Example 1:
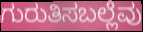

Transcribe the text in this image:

ಗುರುತಿಸಬಲ್ಲೆವು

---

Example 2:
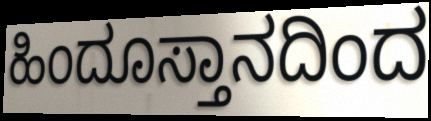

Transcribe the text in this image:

ಹಿಂದೂಸ್ತಾನದಿಂದ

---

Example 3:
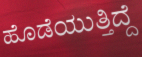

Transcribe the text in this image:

ಹೊಡೆಯುತ್ತಿದ್ದೆ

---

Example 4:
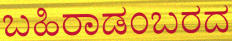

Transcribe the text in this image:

ಬಹಿರಾಡಂಬರದ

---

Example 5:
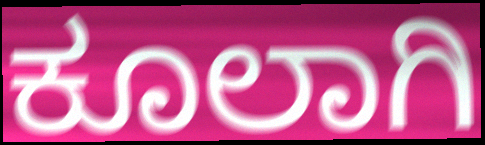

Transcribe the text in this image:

ಕೂಲಾಗಿ